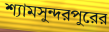
শ্যামসুন্দরপুরের